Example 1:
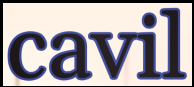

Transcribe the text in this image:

cavil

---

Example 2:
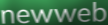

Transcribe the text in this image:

newweb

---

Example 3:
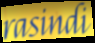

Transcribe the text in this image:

rasindi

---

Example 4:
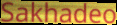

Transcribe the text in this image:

Sakhadeo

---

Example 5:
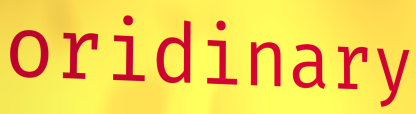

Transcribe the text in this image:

oridinary